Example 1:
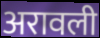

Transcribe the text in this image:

अरावली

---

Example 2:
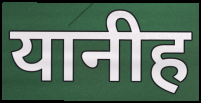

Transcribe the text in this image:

यानीह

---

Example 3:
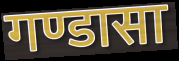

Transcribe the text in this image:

गण्डासा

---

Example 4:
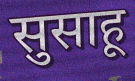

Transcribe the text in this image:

सुसाहू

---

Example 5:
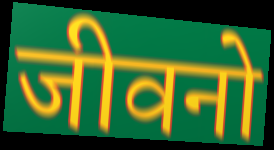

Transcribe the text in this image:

जीवनो